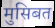
मुसिबत